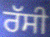
ਰੱਸੀ